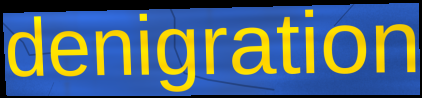
denigration